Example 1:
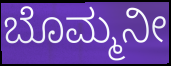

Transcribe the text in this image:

ಬೊಮ್ಮನೀ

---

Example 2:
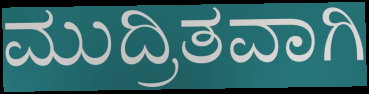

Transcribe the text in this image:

ಮುದ್ರಿತವಾಗಿ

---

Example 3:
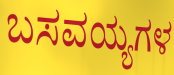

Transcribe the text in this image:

ಬಸವಯ್ಯಗಳ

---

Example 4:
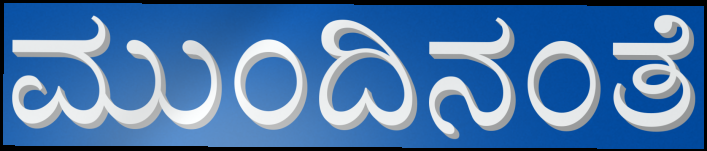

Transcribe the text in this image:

ಮುಂದಿನಂತೆ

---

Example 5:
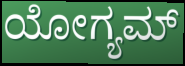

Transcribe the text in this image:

ಯೋಗ್ಯಮ್